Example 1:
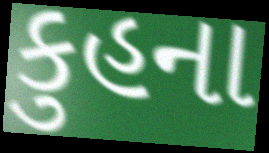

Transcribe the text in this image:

કુહના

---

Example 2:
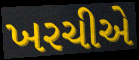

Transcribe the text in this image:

ખરચીએ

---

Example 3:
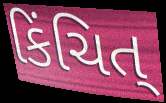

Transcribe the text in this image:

કિંચિત્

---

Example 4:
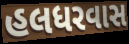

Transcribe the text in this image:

હલધરવાસ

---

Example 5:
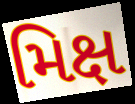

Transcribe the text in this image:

મિક્ષ